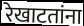
रेखाटतांना